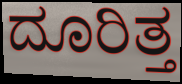
ದೂರಿತ್ತ